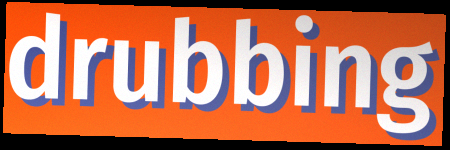
drubbing